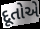
દૂતોએ